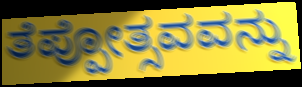
ತೆಪ್ಪೋತ್ಸವವನ್ನು